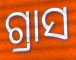
ଗ୍ରାସ